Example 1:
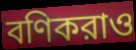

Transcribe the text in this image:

বণিকরাও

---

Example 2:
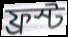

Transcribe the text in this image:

ফ্রস্ট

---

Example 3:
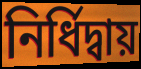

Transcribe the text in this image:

নির্ধিদ্বায়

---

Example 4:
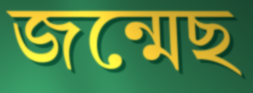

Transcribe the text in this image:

জন্মেছ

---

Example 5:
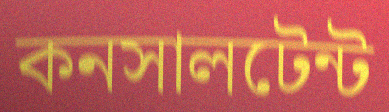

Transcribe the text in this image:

কনসালটেন্ট